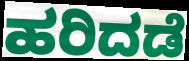
ಹರಿದಡೆ